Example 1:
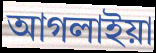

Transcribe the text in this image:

আগলাইয়া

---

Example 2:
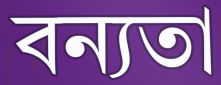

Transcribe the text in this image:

বন্যতা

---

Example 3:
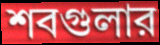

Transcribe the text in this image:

শবগুলার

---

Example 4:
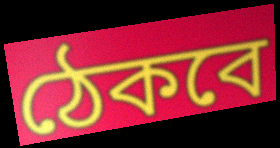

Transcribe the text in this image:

ঠেকবে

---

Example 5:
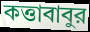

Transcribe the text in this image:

কত্তাবাবুর